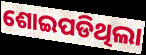
ଶୋଇପଡିଥିଲା